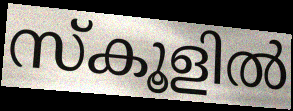
സ്കൂളിൽ